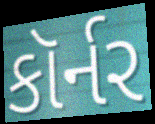
કૉર્નર